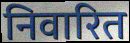
निवारित